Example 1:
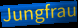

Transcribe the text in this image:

Jungfrau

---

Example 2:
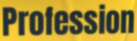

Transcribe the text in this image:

Profession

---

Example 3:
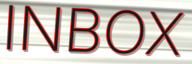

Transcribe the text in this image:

INBOX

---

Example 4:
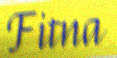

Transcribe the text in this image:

Fitna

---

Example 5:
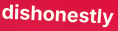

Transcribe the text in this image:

dishonestly